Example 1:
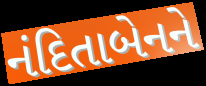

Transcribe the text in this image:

નંદિતાબેનને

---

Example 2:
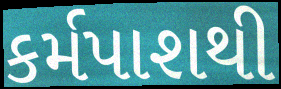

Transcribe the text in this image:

કર્મપાશથી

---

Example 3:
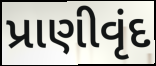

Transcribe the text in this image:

પ્રાણીવૃંદ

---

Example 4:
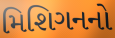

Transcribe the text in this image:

મિશિગનનો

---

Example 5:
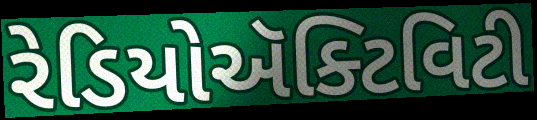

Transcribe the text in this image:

રેડિયોઍક્ટિવિટી